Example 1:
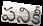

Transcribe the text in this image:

పనికీ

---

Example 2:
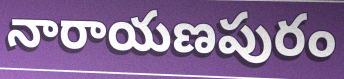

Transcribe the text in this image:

నారాయణపురం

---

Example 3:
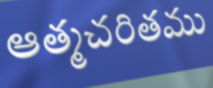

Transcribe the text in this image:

ఆత్మచరితము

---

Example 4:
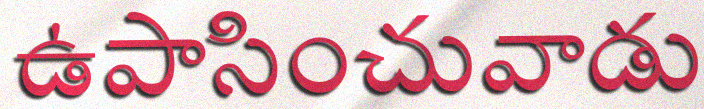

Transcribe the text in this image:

ఉపాసించువాడు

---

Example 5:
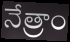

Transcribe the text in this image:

నేత్రాం